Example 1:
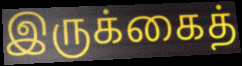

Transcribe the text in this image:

இருக்கைத்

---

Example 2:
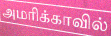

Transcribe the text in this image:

அமரிக்காவில்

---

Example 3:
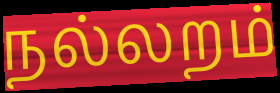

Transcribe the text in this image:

நல்லறம்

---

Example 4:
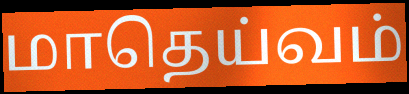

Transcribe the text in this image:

மாதெய்வம்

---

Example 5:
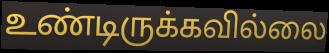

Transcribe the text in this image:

உண்டிருக்கவில்லை